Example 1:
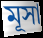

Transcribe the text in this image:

মূসা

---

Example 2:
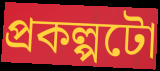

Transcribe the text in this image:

প্ৰকল্পটো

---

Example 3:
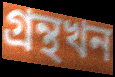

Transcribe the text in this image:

গ্ৰন্থখন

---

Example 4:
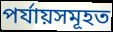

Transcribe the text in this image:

পৰ্যায়সমূহত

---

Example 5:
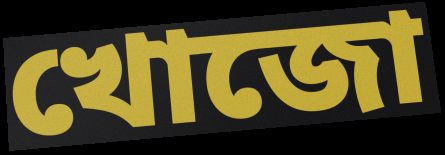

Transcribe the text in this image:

খোজো